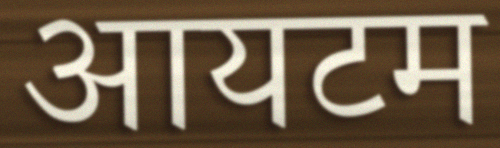
आयटम